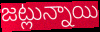
జట్లున్నాయి